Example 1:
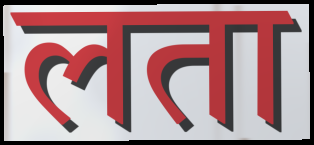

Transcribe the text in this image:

लता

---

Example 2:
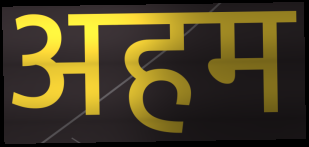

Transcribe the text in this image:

अहम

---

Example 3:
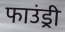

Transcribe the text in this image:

फाउंड्री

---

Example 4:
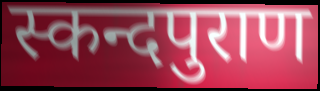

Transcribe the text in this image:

स्कन्दपुराण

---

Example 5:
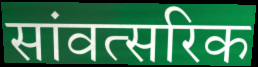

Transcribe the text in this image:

सांवत्सरिक